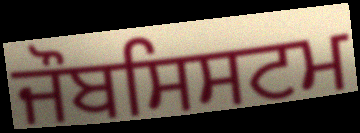
ਜੌਬਸਿਸਟਮ